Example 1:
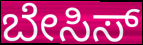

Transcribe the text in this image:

ಬೇಸಿಸ್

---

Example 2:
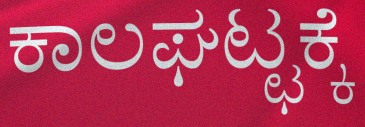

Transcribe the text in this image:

ಕಾಲಘಟ್ಟಕ್ಕೆ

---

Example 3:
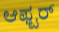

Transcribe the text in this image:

ಆಫ್ಟರ್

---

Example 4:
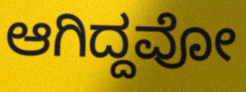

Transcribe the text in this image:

ಆಗಿದ್ದವೋ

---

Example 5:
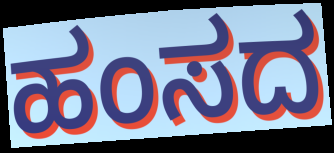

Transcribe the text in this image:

ಹಂಸದ